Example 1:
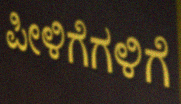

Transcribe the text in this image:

ಪೀಳಿಗೆಗಳಿಗೆ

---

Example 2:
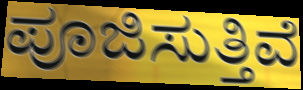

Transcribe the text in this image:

ಪೂಜಿಸುತ್ತಿವೆ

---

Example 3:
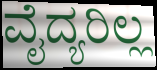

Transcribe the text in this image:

ವೈದ್ಯರಿಲ್ಲ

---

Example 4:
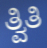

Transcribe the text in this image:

ತ್ವಿತಿ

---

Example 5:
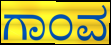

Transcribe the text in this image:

ಗಾಂವ